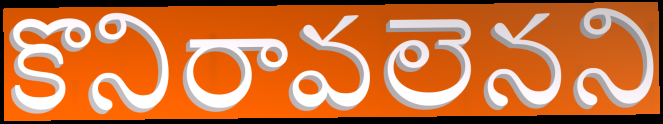
కొనిరావలెనని